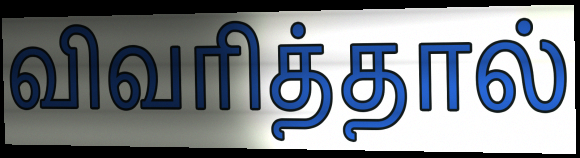
விவரித்தால்